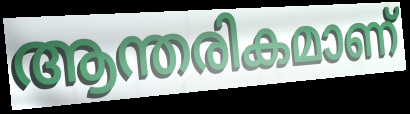
ആന്തരികമാണ്